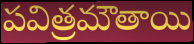
పవిత్రమౌతాయి